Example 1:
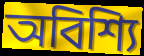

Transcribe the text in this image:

অবিশ্যি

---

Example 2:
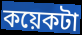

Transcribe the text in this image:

কয়েকটা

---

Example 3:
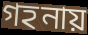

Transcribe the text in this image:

গহনায়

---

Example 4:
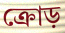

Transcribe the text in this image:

ক্রোড়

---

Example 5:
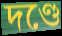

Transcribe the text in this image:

দণ্ডে